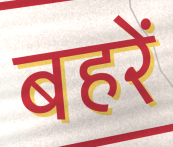
बहरें